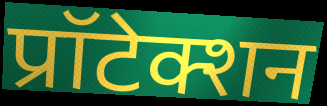
प्रॉटेक्शन